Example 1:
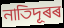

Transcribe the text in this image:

নাতিদূৰৰ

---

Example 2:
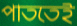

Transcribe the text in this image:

পাততেই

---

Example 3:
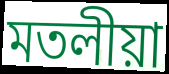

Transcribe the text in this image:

মতলীয়া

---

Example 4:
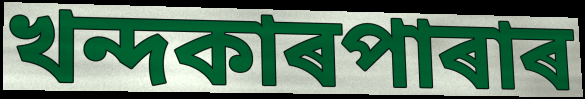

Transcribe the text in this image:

খন্দকাৰপাৰাৰ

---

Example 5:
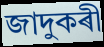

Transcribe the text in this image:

জাদুকৰী